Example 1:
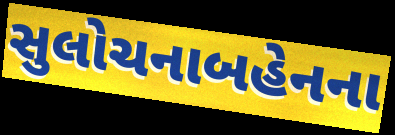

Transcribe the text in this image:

સુલોચનાબહેનના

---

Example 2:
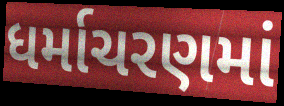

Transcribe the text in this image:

ધર્માચરણમાં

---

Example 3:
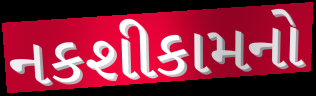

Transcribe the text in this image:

નકશીકામનો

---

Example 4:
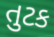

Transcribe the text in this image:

તુટક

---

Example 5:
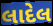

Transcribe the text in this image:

લાદેલ